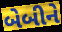
બેબીને